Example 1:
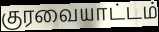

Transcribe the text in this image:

குரவையாட்டம்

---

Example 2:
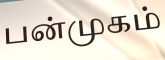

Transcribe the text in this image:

பன்முகம்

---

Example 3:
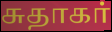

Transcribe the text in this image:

சுதாகர்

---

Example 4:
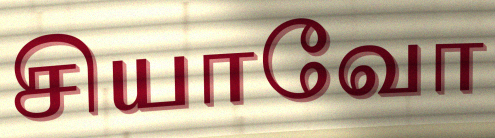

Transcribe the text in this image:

சியாவோ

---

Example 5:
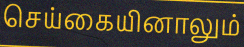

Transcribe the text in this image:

செய்கையினாலும்